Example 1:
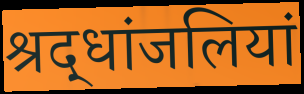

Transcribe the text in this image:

श्रद्धांजलियां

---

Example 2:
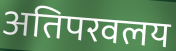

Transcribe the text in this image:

अतिपरवलय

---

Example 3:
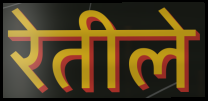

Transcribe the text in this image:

रेतीले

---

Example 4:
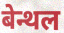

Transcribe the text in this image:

बेन्थल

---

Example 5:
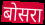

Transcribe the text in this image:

बोसरा